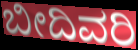
ಬೀದಿವರಿ